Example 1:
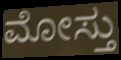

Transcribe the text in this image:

ಮೋಸ್ತು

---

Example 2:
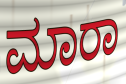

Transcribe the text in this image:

ಮಾರಾ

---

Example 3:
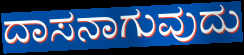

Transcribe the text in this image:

ದಾಸನಾಗುವುದು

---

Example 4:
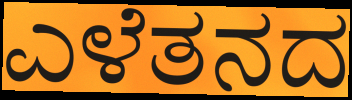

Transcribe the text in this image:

ಎಳೆತನದ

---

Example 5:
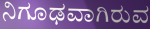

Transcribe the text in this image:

ನಿಗೂಢವಾಗಿರುವ